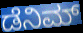
ಡೆನಿಮ್